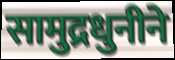
सामुद्रधुनीने